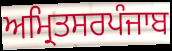
ਅਮ੍ਰਿਤਸਰਪੰਜਾਬ